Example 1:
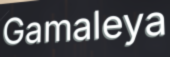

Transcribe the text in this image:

Gamaleya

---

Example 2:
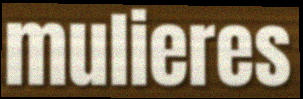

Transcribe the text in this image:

mulieres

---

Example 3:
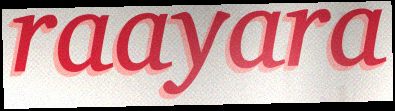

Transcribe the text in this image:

raayara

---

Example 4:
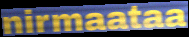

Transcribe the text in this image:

nirmaataa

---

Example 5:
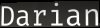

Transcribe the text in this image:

Darian